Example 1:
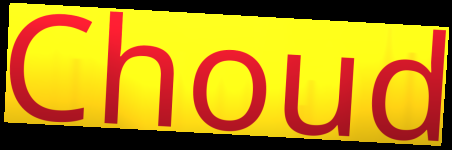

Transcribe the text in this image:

Choud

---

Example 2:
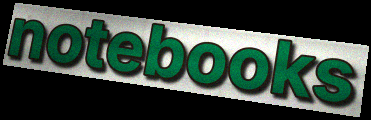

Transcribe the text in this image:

notebooks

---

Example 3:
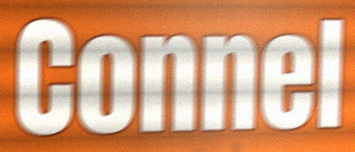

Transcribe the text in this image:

Connel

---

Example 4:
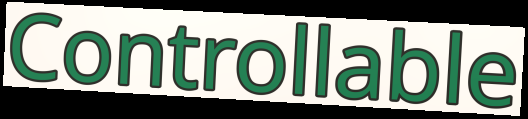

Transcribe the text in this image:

Controllable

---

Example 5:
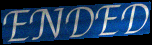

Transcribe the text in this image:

ENDED